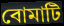
বোমাটি